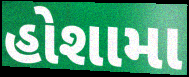
હોશામા